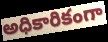
అధికారికంగా